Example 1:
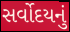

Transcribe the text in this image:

સર્વોદયનું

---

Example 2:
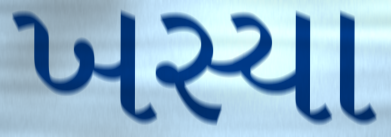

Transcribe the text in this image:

ખસ્યા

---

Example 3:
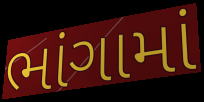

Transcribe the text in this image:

ભાંગામાં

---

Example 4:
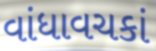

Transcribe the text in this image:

વાંધાવચકાં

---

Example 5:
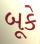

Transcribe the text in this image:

બૂકે